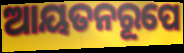
ଆୟତନରୂପେ